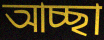
আচ্ছা